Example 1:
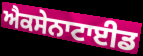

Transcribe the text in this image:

ਐਕਸੇਨਾਟਾਈਡ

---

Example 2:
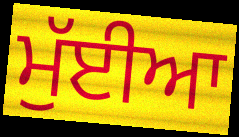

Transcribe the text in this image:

ਮੁੱਈਆ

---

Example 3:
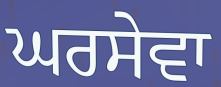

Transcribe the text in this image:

ਘਰਸੇਵਾ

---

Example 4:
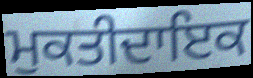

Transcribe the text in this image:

ਮੁਕਤੀਦਾਇਕ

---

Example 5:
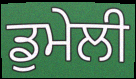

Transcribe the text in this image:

ਡੁਮੇਲੀ